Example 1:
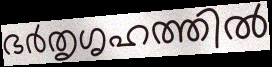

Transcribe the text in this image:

ഭർതൃഗൃഹത്തിൽ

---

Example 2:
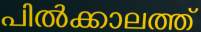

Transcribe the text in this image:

പിൽക്കാലത്ത്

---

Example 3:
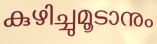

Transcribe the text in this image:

കുഴിച്ചുമൂടാനും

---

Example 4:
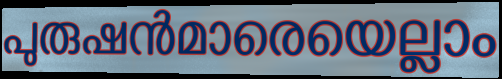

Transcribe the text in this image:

പുരുഷൻമാരെയെല്ലാം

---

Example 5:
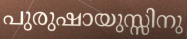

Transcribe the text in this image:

പുരുഷായുസ്സിനു